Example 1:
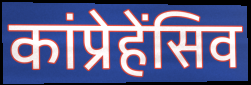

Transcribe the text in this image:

कांप्रेहेंसिव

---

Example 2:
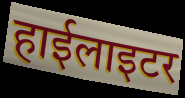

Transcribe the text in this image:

हाईलाइटर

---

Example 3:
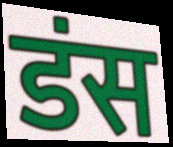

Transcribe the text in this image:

डंस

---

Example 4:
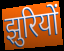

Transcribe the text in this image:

झुरियों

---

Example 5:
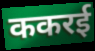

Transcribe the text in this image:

ककरई